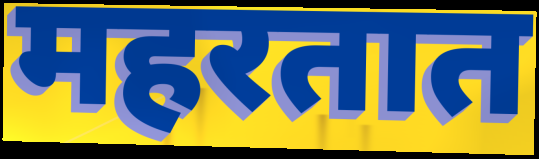
महरतात